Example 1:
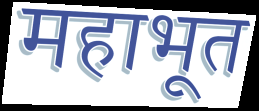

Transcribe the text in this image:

महाभूत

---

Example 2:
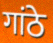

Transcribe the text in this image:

गांठे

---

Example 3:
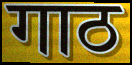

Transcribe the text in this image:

गाठ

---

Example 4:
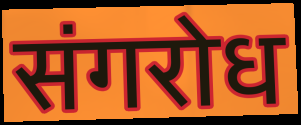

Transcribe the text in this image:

संगरोध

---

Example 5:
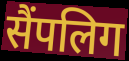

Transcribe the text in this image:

सैंपलिग